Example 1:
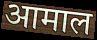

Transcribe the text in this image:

आमाल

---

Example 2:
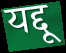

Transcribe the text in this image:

यद्दू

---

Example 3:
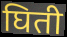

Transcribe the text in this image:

घिती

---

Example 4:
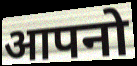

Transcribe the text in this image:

आपनो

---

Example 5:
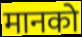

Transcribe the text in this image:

मानको